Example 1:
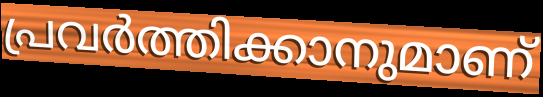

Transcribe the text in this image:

പ്രവർത്തിക്കാനുമാണ്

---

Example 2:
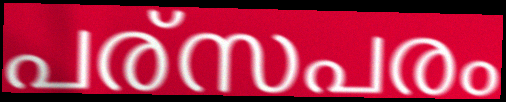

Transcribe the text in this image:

പര്സപരം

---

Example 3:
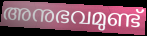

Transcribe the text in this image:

അനുഭവമുണ്ട്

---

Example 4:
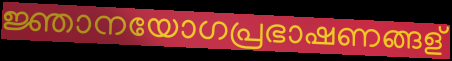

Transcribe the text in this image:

ജ്ഞാനയോഗപ്രഭാഷണങ്ങള്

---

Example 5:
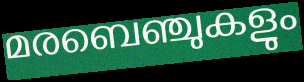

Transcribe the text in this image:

മരബെഞ്ചുകളും